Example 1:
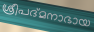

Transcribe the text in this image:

ശ്രീപദ്മനാഭായ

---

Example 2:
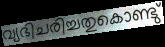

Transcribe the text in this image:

വ്യഭിചരിച്ചതുകൊണ്ടു്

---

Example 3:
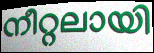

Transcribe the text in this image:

നീറ്റലായി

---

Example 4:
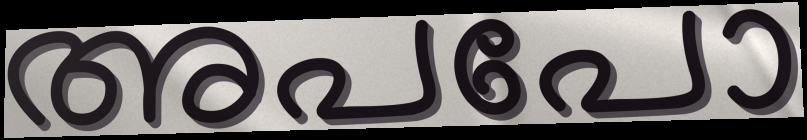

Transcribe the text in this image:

അപപോ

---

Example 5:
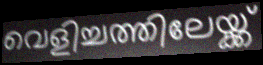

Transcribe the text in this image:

വെളിച്ചത്തിലേയ്ക്ക്